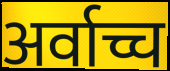
अर्वाच्च